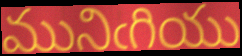
మునిఁగియు